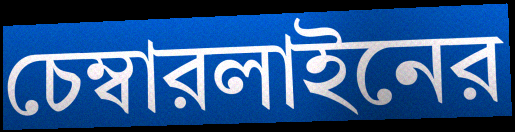
চেম্বারলাইনের